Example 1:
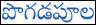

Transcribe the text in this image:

పొగడపూల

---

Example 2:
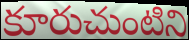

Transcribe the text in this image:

కూరుచుంటిని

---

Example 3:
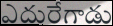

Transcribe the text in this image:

ఎదురేగాడు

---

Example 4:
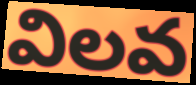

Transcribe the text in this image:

విలవ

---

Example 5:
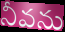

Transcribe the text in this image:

నీవను